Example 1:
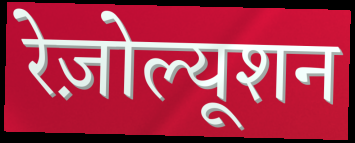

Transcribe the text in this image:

रेज़ोल्यूशन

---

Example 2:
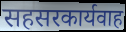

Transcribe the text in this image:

सहसरकार्यवाह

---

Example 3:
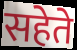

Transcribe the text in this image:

सहेते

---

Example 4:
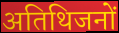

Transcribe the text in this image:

अतिथिजनों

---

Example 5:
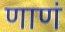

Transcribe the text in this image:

णाणं